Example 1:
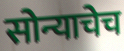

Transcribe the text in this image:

सोन्याचेच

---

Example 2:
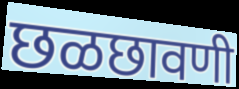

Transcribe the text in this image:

छळछावणी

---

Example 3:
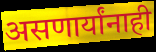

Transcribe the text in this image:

असणार्यांनाही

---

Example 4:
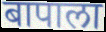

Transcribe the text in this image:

बापाला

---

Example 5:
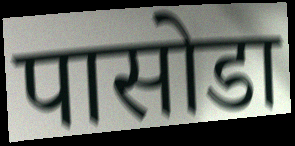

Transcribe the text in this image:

पासोडा